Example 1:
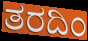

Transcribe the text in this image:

ತರದಿಂ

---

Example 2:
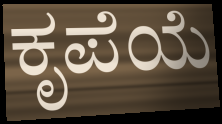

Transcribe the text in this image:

ಕೃಪೆಯೆ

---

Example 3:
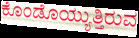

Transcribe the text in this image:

ಕೊಂಡೊಯ್ಯುತ್ತಿರುವ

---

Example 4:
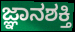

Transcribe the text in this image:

ಜ್ಞಾನಶಕ್ತಿ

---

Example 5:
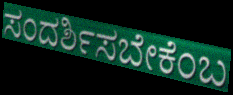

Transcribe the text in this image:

ಸಂದರ್ಶಿಸಬೇಕೆಂಬ